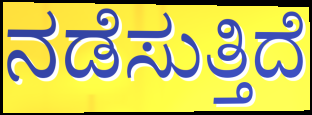
ನಡೆಸುತ್ತಿದೆ